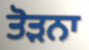
ਤੋੜਨਾ